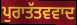
ਪੁਰਾਤੱਤਵਵਾਦ